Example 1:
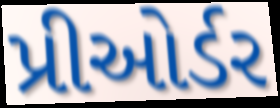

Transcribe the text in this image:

પ્રીઓર્ડર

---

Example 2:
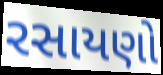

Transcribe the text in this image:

રસાયણો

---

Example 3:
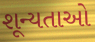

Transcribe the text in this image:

શૂન્યતાઓ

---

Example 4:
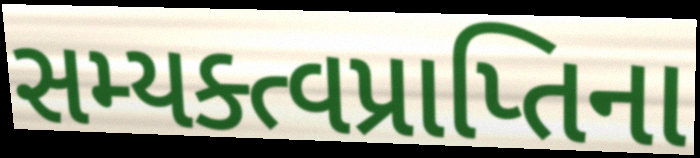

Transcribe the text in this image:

સમ્યક્ત્વપ્રાપ્તિના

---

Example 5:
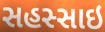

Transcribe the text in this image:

સહસ્સાઇ